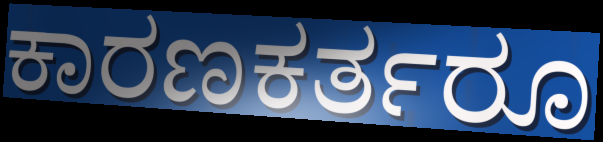
ಕಾರಣಕರ್ತರೂ